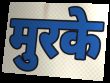
मुरके